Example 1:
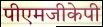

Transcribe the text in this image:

पीएमजीकेपी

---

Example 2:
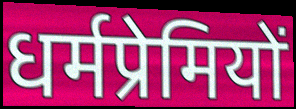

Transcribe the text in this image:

धर्मप्रेमियों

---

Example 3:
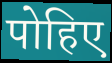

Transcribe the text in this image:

पोहिए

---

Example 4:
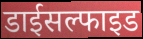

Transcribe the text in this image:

डाईसल्फाइड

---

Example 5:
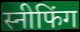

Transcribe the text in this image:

स्नीफिंग